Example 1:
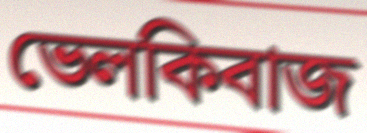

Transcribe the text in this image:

ভেলকিবাজ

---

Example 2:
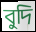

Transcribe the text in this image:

বুদি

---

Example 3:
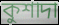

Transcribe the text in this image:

কুশাদা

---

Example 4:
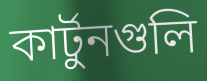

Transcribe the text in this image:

কার্টুনগুলি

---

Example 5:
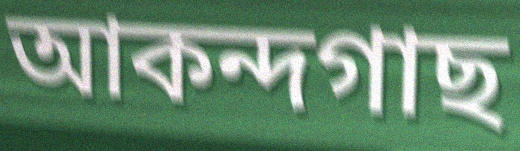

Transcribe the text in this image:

আকন্দগাছ